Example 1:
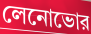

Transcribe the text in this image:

লেনোভোর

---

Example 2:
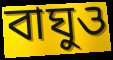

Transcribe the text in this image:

বাঘুও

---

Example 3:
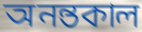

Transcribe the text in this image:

অনন্তকাল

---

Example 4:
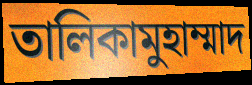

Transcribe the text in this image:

তালিকামুহাম্মাদ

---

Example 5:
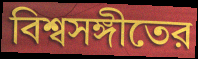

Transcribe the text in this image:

বিশ্বসঙ্গীতের